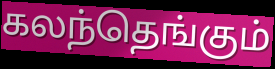
கலந்தெங்கும்